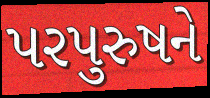
પરપુરુષને